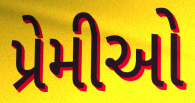
પ્રેમીઓ